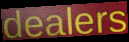
dealers